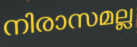
നിരാസമല്ല